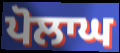
ਪੋਲਾਘ